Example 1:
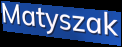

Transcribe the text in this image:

Matyszak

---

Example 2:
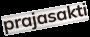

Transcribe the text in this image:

prajasakti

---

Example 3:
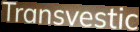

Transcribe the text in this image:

Transvestic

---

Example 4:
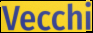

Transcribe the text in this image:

Vecchi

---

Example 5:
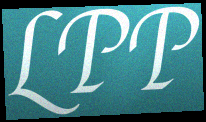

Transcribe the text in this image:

LPP